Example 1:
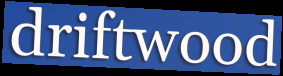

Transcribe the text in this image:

driftwood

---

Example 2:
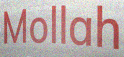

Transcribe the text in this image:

Mollah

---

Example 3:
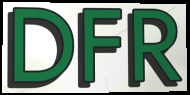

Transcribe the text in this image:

DFR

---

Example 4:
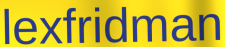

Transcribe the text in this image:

lexfridman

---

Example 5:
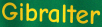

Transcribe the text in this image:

Gibralter